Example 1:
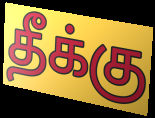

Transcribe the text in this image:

தீக்கு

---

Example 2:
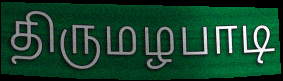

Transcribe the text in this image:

திருமழபாடி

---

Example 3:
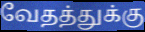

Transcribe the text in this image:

வேதத்துக்கு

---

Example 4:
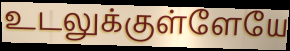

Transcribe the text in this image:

உடலுக்குள்ளேயே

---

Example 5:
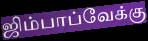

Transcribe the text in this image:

ஜிம்பாப்வேக்கு